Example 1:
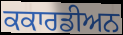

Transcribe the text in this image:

ਕਕਾਰਡੀਅਨ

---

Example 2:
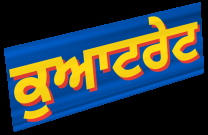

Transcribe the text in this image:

ਕੁਆਟਰੇਟ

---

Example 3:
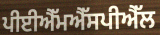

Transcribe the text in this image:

ਪੀਈਐੱਮਐੱਸਪੀਐੱਲ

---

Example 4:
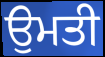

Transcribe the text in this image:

ਉਮਤੀ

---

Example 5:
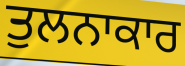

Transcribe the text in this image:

ਤੁਲਨਾਕਾਰ